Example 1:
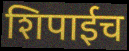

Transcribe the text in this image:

शिपाईच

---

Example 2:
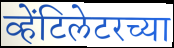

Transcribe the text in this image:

व्हेंटिलेटरच्या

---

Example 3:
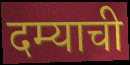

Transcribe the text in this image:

दम्याची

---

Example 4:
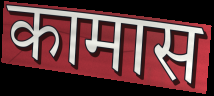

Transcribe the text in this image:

कामास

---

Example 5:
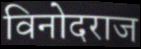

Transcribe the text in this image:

विनोदराज